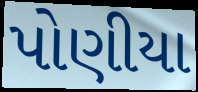
પોણીયા